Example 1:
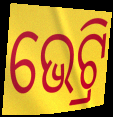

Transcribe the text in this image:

ଭେଟ୍ରି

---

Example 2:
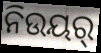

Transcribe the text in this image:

ନିଉୟର୍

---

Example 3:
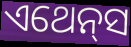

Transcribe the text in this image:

ଏଥେନ୍‌ସ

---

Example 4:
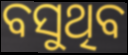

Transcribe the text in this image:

ବସୁଥିବ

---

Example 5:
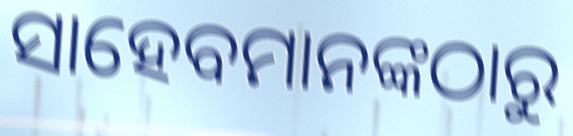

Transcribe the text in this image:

ସାହେବମାନଙ୍କଠାରୁ